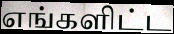
எங்களிட்ட